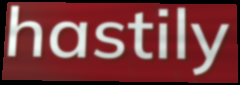
hastily